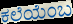
ಕಲೆಯೆಂಬ